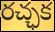
రచ్ఛక